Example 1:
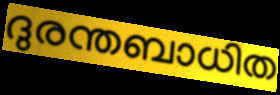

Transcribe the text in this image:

ദുരന്തബാധിത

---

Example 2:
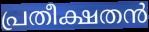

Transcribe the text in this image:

പ്രതീക്ഷതൻ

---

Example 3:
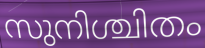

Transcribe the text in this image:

സുനിശ്ചിതം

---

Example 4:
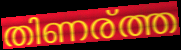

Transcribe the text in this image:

തിണര്ത്ത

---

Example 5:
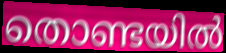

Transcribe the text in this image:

തൊണ്ടയിൽ